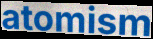
atomism